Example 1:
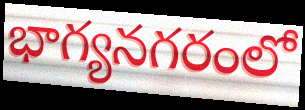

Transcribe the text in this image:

భాగ్యనగరంలో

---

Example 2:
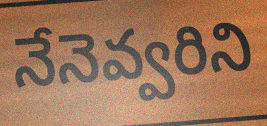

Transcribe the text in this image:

నేనెవ్వరిని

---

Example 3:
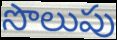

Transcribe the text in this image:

సొలుపు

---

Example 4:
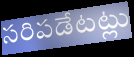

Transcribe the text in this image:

సరిపడేటట్లు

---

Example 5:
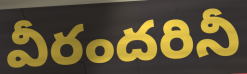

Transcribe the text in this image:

వీరందరినీ